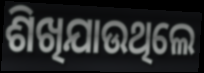
ଶିଖିଯାଉଥିଲେ